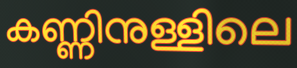
കണ്ണിനുള്ളിലെ